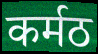
कर्मठ